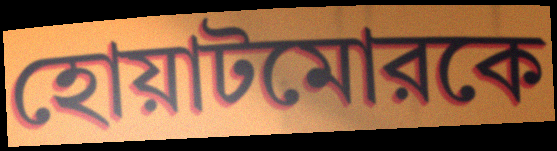
হোয়াটমোরকে